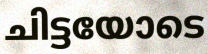
ചിട്ടയോടെ